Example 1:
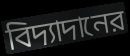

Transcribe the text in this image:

বিদ্যাদানের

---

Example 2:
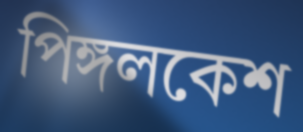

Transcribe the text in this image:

পিঙ্গলকেশ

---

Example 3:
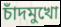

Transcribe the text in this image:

চাঁদমুখো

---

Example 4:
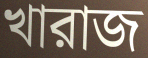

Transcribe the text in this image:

খারাজ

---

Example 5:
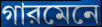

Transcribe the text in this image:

গারমেনে